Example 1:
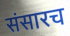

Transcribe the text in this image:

संसारच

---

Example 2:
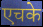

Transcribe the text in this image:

एचके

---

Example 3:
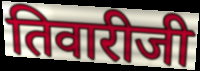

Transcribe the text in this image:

तिवारीजी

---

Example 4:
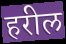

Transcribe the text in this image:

हरील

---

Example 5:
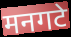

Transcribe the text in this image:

मनगटे